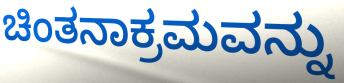
ಚಿಂತನಾಕ್ರಮವನ್ನು